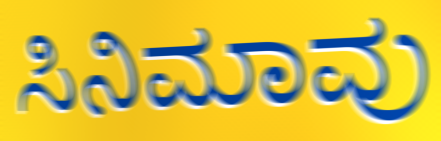
ಸಿನಿಮಾವು